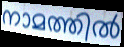
നാമത്തിൽ